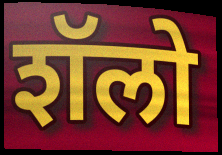
शॅलो